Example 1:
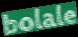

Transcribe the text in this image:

bolale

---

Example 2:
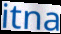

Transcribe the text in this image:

itna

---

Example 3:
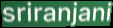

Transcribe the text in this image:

sriranjani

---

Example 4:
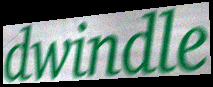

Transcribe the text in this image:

dwindle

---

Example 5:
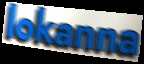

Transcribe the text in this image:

lokanna